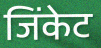
जिंकेट